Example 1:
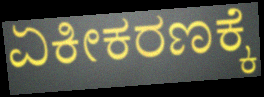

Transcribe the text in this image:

ಏಕೀಕರಣಕ್ಕೆ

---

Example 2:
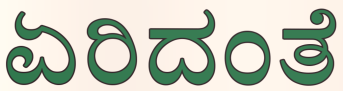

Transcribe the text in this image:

ಏರಿದಂತೆ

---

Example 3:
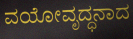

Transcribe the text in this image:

ವಯೋವೃದ್ಧನಾದ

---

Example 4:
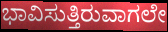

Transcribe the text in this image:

ಭಾವಿಸುತ್ತಿರುವಾಗಲೇ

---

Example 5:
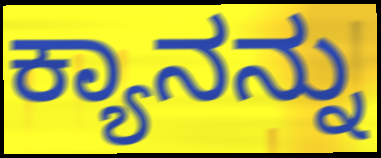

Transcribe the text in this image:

ಕ್ಯಾನನ್ನು